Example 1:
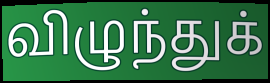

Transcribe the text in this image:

விழுந்துக்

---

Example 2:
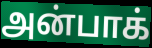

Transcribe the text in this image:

அன்பாக்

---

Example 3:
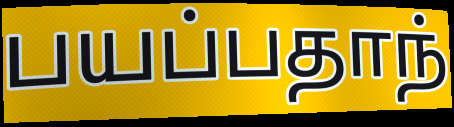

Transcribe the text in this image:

பயப்பதாந்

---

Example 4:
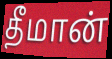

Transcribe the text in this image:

தீமான்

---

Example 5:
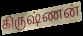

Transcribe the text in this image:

கிருஷ்ணன்